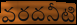
వరదనీటి